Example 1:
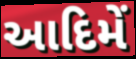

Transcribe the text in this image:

આદિમેં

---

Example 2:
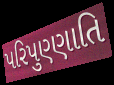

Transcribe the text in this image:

પરિપુણ્ણાતિ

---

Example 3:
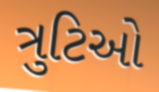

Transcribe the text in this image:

ત્રુટિઓ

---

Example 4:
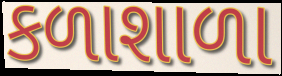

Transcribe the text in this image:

કળાશાળા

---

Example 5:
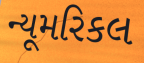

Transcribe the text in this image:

ન્યૂમરિકલ